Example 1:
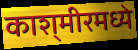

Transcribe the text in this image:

काश्मीरमध्ये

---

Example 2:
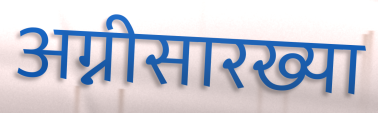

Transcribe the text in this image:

अग्नीसारख्या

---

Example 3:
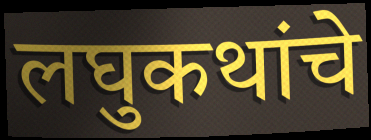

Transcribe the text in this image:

लघुकथांचे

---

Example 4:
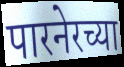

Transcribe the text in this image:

पारनेरच्या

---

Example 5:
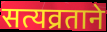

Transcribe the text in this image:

सत्यव्रताने